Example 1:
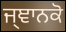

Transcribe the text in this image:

ਜ੍ਞਾਨਕੋ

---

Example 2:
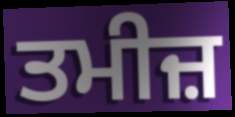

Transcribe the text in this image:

ਤਮੀਜ਼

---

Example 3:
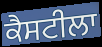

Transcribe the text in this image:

ਕੈਸਟੀਲਾ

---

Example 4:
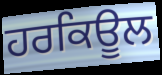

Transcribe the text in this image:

ਹਰਕਿਊਲ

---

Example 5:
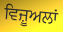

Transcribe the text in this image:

ਵਿਜ਼ੂਅਲਾਂ